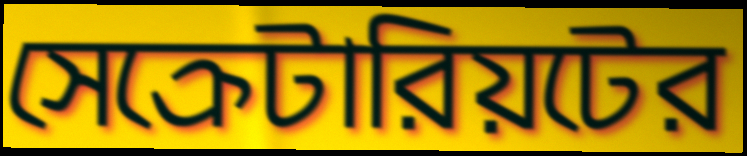
সেক্রেটারিয়টের